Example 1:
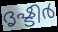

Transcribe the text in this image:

ദൃഷ്ടിർ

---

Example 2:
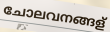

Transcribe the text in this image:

ചോലവനങ്ങള്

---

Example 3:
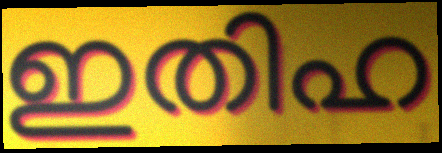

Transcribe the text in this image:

ഇതിഹ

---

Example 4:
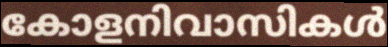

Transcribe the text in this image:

കോളനിവാസികൾ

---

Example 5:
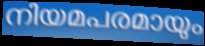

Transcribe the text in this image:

നിയമപരമായും